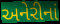
અનેરીનાં